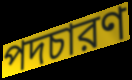
পদচারণ